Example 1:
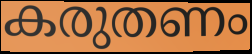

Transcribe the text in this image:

കരുതണം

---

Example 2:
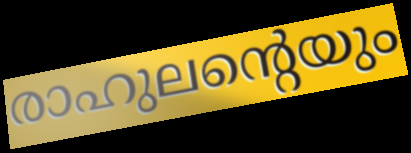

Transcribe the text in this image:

രാഹുലന്റെയും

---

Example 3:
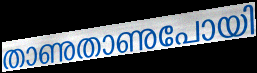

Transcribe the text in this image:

താണുതാണുപോയി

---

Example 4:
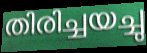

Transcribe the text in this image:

തിരിച്ചയച്ചു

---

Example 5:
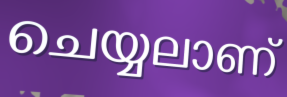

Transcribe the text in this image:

ചെയ്യലാണ്